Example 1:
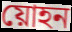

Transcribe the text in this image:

য়োহন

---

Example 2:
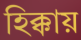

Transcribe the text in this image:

হিক্কায়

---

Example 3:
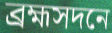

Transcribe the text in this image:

ব্রহ্মসদনে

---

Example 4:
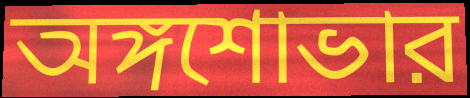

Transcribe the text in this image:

অঙ্গশোভার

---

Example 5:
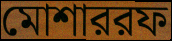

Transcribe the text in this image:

মোশাররফ